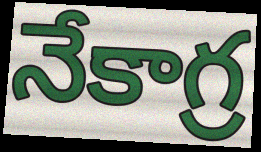
నేకాగ్ర